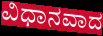
ವಿಧಾನವಾದ